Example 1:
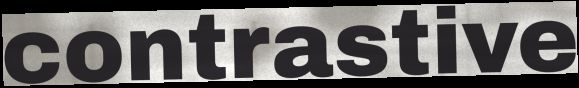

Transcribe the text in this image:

contrastive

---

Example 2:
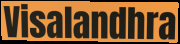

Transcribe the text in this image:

Visalandhra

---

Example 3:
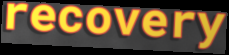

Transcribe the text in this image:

recovery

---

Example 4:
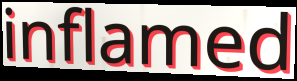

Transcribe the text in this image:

inflamed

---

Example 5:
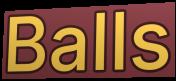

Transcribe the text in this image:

Balls